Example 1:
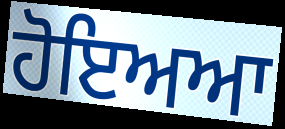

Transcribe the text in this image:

ਹੋਇਅਆ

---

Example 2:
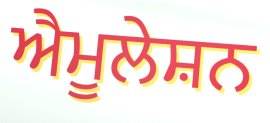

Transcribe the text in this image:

ਐਮੂਲੇਸ਼ਨ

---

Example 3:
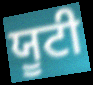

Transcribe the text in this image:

ਯੂਟੀ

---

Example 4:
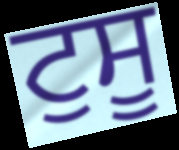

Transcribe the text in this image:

ਟੁਸੂ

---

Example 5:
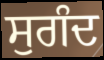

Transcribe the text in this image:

ਸੁਗੰਦ